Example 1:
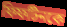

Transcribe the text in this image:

ফিফটিনকে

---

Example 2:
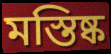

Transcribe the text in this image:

মস্তিষ্ক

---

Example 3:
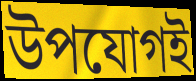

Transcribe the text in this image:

উপযোগই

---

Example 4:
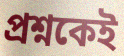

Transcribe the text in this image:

প্রশ্নকেই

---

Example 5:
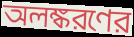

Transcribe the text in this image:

অলঙ্করণের